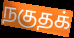
நகுதக்